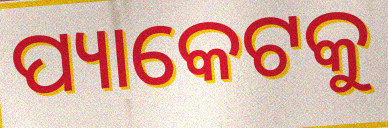
ପ୍ୟାକେଟକୁ